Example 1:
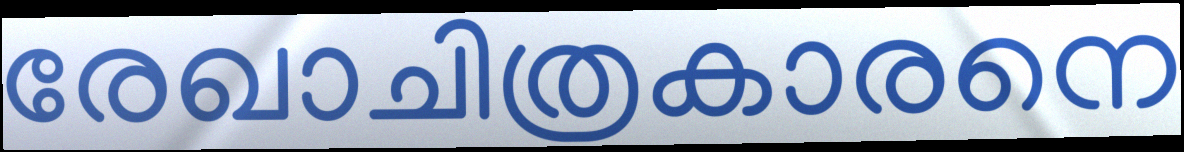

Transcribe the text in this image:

രേഖാചിത്രകാരനെ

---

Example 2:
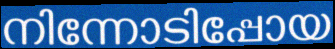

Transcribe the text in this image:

നിന്നോടിപ്പോയ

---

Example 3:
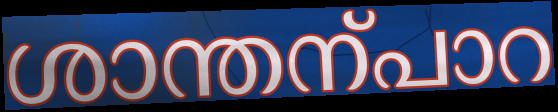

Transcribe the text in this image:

ശാന്തന്പാറ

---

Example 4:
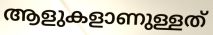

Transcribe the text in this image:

ആളുകളാണുള്ളത്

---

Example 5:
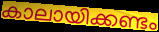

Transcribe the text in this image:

കാലായിക്കണ്ടം